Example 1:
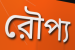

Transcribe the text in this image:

রৌপ্য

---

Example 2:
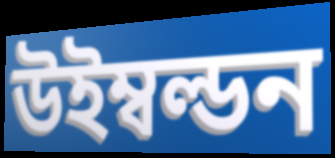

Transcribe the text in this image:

উইম্বল্ডন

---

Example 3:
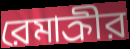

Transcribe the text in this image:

রেমাক্রীর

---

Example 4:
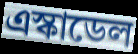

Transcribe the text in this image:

এস্কাডেল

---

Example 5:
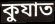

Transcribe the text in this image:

কুযাত